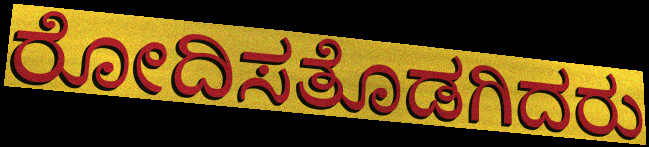
ರೋದಿಸತೊಡಗಿದರು